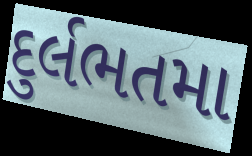
દુર્લભતમા